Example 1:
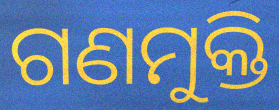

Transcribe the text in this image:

ଗଣମୁକ୍ତି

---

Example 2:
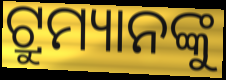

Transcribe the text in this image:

ଟ୍ରୁମ୍ୟାନଙ୍କୁ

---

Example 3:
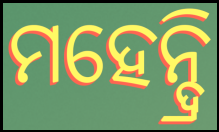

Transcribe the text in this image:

ମହେନ୍ଦ୍ରି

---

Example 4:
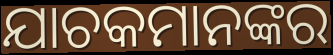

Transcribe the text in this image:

ଯାଚକମାନଙ୍କର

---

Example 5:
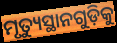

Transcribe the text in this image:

ମୃତ୍ୟୁସ୍ଥାନଗୁଡ଼ିକୁ